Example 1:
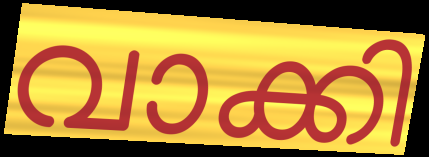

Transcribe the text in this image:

വാക്കി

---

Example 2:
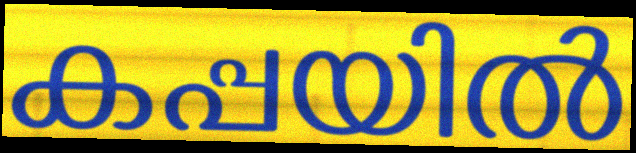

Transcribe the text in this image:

കപ്പയിൽ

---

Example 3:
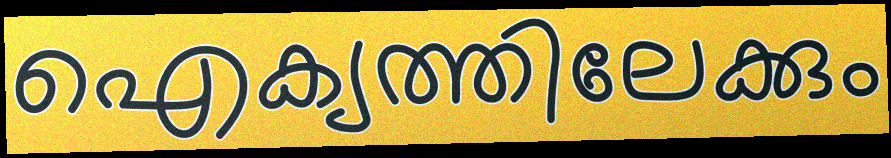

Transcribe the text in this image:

ഐക്യത്തിലേക്കും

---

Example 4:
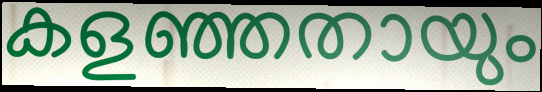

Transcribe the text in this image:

കളഞ്ഞതായും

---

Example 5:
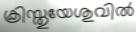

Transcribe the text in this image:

ക്രിസ്തുയേശുവിൽ